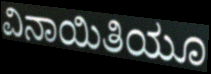
ವಿನಾಯಿತಿಯೂ